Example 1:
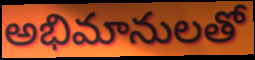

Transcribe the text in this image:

అభిమానులతో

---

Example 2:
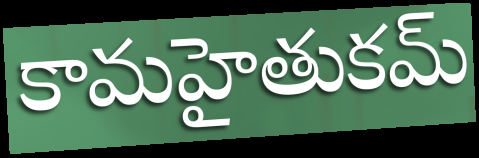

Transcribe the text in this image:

కామహైతుకమ్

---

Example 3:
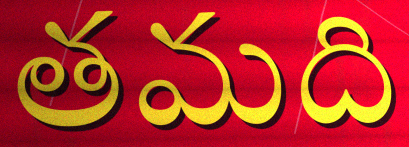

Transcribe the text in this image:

తమది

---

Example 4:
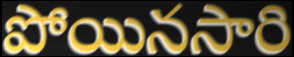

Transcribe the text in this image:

పోయినసారి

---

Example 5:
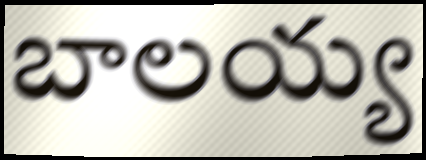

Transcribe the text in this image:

బాలయ్య